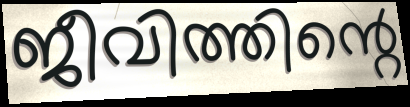
ജീവിത്തിന്റെ